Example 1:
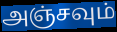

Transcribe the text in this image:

அஞ்சவும்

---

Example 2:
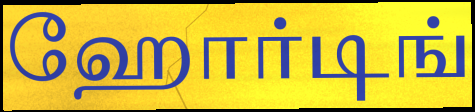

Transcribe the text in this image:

ஹோர்டிங்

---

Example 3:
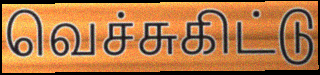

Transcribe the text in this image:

வெச்சுகிட்டு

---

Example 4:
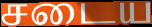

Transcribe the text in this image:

சடைய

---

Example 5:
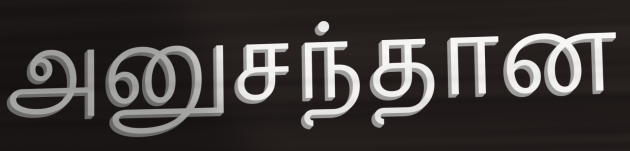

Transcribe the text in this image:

அனுசந்தான